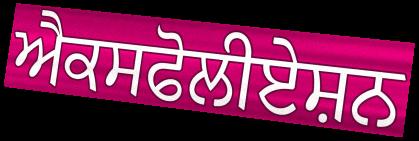
ਐਕਸਫੋਲੀਏਸ਼ਨ